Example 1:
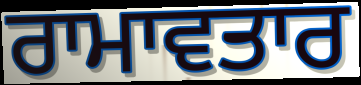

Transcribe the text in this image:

ਰਾਮਾਵਤਾਰ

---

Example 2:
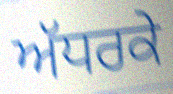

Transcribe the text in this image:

ਅੱਧਰਕੇ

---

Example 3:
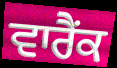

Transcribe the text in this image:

ਵਾਰੈਂਕ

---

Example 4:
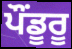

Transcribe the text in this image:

ਪੌਂਡੂਰੂ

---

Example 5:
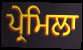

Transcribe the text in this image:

ਪ੍ਰੇਮਿਲਾ